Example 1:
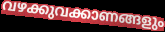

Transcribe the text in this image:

വഴക്കുവക്കാണങ്ങളും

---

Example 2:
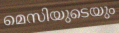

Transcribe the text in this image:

മെസിയുടെയും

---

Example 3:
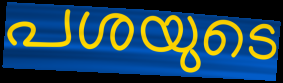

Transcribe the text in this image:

പശയുടെ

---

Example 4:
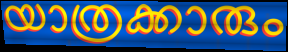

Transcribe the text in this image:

യാത്രക്കാരും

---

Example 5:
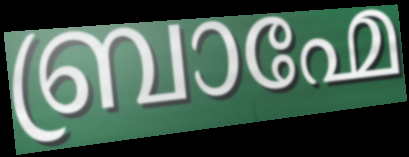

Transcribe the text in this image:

ബ്രാഹ്മേ